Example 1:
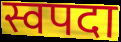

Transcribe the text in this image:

स्वपदा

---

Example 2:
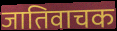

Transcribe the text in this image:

जातिवाचक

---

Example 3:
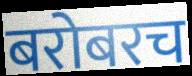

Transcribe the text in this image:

बरोबरच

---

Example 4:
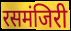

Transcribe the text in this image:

रसमंजिरी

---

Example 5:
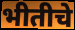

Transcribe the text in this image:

भीतीचे